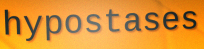
hypostases